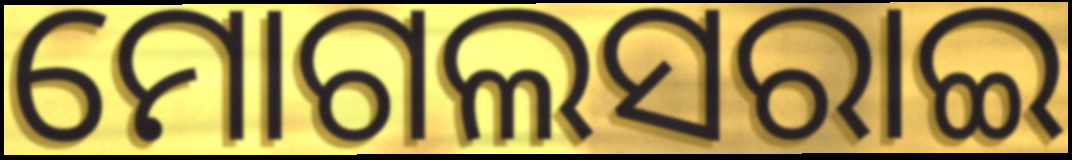
ମୋଗଲସରାଇ